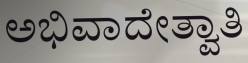
ಅಭಿವಾದೇತ್ವಾತಿ